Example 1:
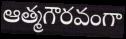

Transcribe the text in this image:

ఆత్మగౌరవంగా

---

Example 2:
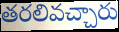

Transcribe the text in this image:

తరలివచ్చారు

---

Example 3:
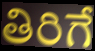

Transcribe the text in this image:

తిరిగే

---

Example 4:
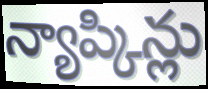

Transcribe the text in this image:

న్యాప్కిన్లు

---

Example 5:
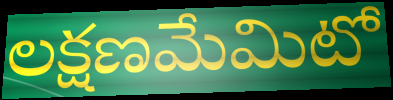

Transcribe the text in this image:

లక్షణమేమిటో